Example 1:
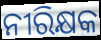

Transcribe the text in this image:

ନୀରିକ୍ଷକ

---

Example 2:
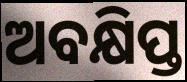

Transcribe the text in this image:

ଅବକ୍ଷିପ୍ତ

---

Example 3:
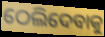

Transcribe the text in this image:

ଠେଲିଦେବାକୁ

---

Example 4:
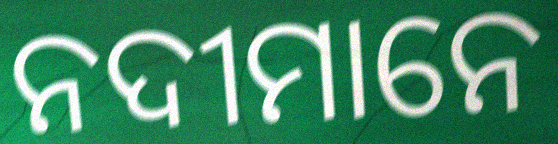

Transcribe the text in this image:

ନଦୀମାନେ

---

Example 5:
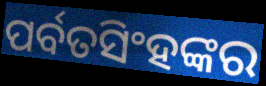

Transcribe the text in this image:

ପର୍ବତସିଂହଙ୍କର